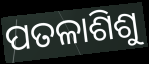
ପତଳାଶିଶୁ